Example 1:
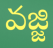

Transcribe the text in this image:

వజ్జి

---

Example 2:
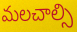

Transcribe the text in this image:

మలచాల్సి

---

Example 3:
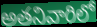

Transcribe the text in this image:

అతనివారిలో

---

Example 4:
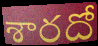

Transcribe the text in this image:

శారదో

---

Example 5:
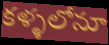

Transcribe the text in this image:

కళ్ళలోనూ